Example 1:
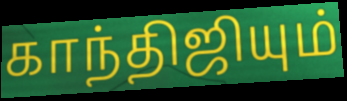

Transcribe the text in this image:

காந்திஜியும்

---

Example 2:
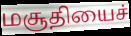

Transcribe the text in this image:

மசூதியைச்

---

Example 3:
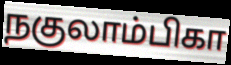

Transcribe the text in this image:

நகுலாம்பிகா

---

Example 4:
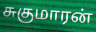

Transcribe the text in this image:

சுகுமாரன்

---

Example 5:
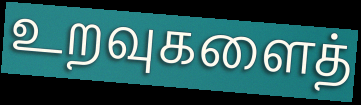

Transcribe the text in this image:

உறவுகளைத்